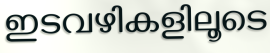
ഇടവഴികളിലൂടെ